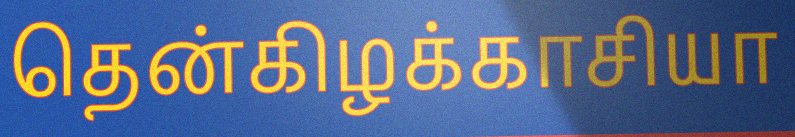
தென்கிழக்காசியா